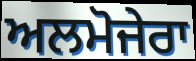
ਅਲਮੋਜੇਰਾ